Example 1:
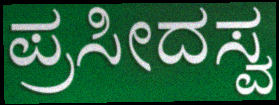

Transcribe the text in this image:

ಪ್ರಸೀದಸ್ವ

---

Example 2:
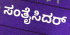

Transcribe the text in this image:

ಸಂತೈಸಿದರ್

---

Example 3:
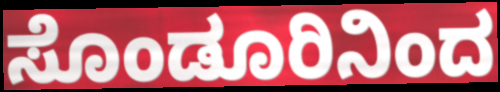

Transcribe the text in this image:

ಸೊಂಡೂರಿನಿಂದ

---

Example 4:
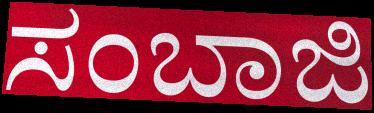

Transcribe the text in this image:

ಸಂಬಾಜಿ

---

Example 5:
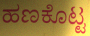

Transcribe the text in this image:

ಹಣಕೊಟ್ಟ